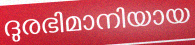
ദുരഭിമാനിയായ